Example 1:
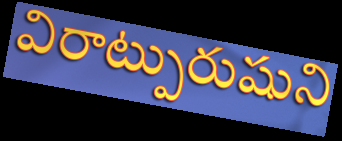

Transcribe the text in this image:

విరాట్పురుషుని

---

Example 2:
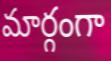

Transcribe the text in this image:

మార్గంగా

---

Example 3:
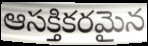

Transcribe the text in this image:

ఆసక్తికరమైన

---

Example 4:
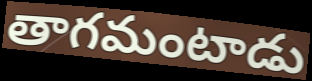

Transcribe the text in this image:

తాగమంటాడు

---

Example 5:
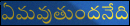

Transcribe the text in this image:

ఏమవుతుందనేది